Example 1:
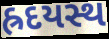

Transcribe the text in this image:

હ્રદયસ્થ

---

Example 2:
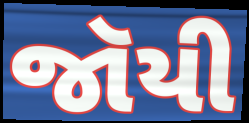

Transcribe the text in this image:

જૉયી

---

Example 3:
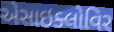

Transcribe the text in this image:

એસાઇક્લોવિર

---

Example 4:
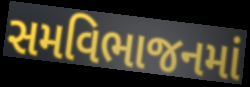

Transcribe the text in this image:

સમવિભાજનમાં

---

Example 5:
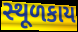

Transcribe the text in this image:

સ્થૂળકાય